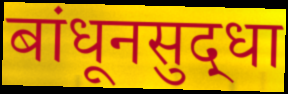
बांधूनसुद्धा